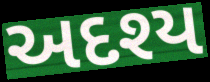
અદશ્ય